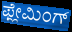
ಫ್ಲೇಮಿಂಗ್